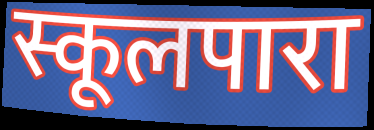
स्कूलपारा